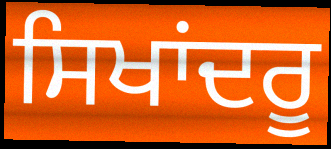
ਸਿਖਾਂਦਰੂ